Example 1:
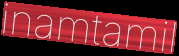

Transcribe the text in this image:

inamtamil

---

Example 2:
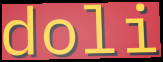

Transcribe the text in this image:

doli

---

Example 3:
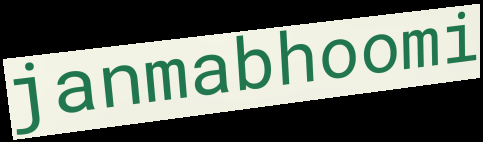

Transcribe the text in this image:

janmabhoomi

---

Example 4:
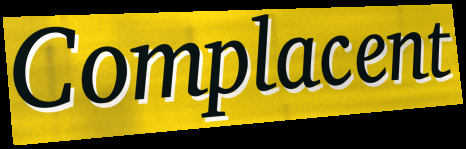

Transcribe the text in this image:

Complacent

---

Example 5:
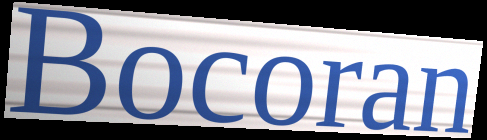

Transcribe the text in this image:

Bocoran